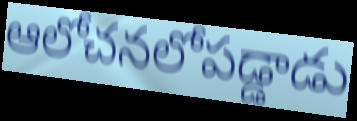
ఆలోచనలోపడ్డాడు